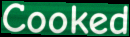
Cooked